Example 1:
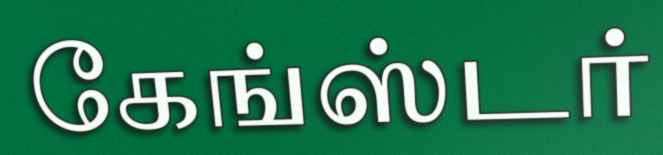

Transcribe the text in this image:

கேங்ஸ்டர்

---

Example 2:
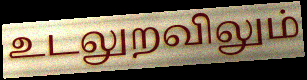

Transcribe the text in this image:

உடலுறவிலும்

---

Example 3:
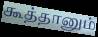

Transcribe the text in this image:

கூத்தானும்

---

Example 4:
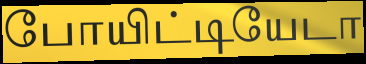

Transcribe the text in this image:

போயிட்டியேடா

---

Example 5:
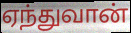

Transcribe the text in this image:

ஏந்துவான்